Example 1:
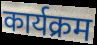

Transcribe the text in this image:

कार्यक्रम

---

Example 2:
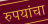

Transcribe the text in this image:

रुपयांचा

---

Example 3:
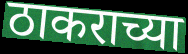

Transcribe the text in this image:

ठाकराच्या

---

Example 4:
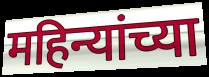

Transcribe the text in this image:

महिन्यांच्या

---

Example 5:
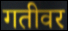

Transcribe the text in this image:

गतीवर